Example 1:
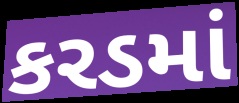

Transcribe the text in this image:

કરડમાં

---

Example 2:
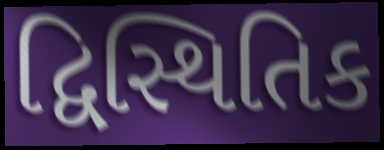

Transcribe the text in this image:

દ્વિસ્થિતિક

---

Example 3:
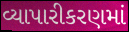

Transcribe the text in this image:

વ્યાપારીકરણમાં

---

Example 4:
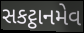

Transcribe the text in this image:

સકટ્ઠાનમેવ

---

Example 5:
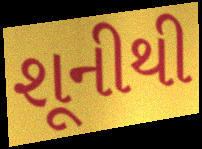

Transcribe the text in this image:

શૂનીથી